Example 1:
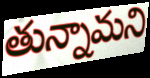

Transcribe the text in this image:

తున్నామని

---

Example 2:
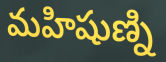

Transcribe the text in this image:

మహిషుణ్ని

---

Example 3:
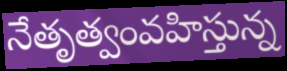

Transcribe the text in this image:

నేతృత్వంవహిస్తున్న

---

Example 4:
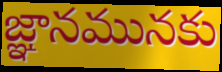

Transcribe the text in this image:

జ్ఞానమునకు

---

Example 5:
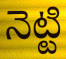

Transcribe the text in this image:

నెట్టి